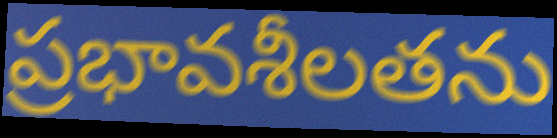
ప్రభావశీలతను